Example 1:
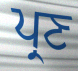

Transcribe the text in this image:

ਪ੍ਰਣ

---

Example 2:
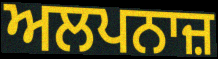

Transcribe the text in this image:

ਅਲਪਨਾਜ਼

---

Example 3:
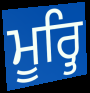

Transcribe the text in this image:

ਮੂਰ੍ਤਿ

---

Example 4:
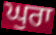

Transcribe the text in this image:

ਘੁਰਾ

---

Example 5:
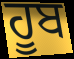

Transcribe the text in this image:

ਹੂਬ